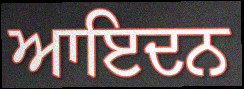
ਆਇਦਨ